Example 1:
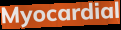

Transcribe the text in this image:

Myocardial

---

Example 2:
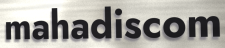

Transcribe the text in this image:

mahadiscom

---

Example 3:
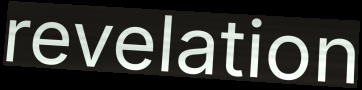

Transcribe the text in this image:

revelation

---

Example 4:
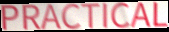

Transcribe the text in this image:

PRACTICAL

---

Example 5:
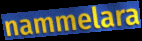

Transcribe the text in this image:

nammelara